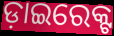
ଡ଼ାଇରେକ୍ଟ